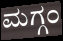
ಮಗ್ಗಂ